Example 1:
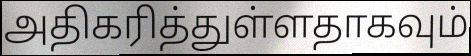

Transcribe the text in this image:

அதிகரித்துள்ளதாகவும்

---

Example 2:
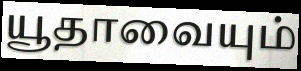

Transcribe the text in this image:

யூதாவையும்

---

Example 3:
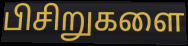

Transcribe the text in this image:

பிசிறுகளை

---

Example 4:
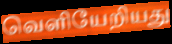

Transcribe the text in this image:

வெளியேறியது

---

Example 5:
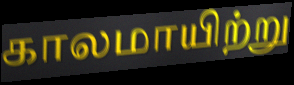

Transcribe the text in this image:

காலமாயிற்று